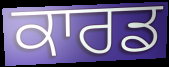
ਕਾਰਡ